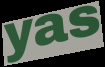
yas